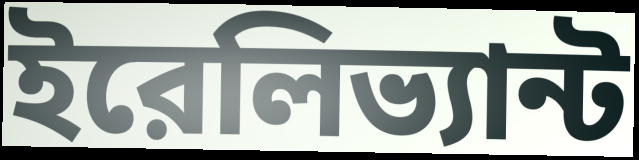
ইরেলিভ্যান্ট